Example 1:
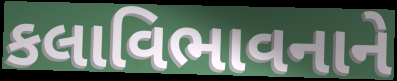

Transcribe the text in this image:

કલાવિભાવનાને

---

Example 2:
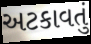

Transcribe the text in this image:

અટકાવતું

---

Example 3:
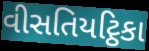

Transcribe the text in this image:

વીસતિયટ્ઠિકા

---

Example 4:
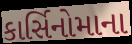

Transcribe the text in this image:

કાર્સિનોમાના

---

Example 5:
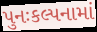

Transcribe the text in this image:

પુનઃકલ્પનામાં